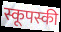
स्कूपस्की